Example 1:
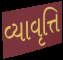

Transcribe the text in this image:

વ્યાવૃત્તિ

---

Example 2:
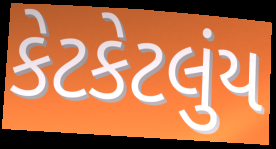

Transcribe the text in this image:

કેટકેટલુંય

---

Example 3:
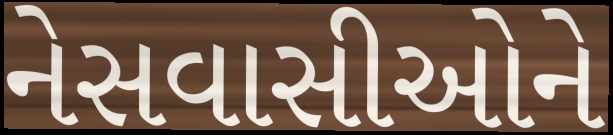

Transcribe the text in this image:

નેસવાસીઓને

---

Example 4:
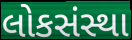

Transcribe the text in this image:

લોકસંસ્થા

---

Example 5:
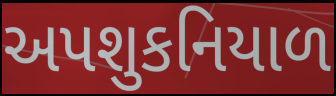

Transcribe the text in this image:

અપશુકનિયાળ